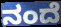
ನಂದೆ